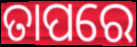
ତାପରେ